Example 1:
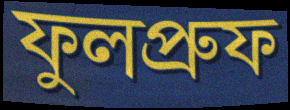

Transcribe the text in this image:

ফুলপ্রুফ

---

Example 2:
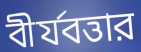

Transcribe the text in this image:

বীর্যবত্তার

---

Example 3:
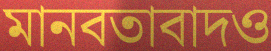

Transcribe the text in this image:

মানবতাবাদও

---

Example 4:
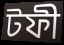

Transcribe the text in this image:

টফী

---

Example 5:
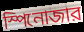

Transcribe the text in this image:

স্পিনোজার